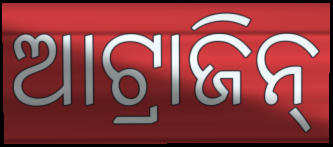
ଆଟ୍ରାଜିନ୍